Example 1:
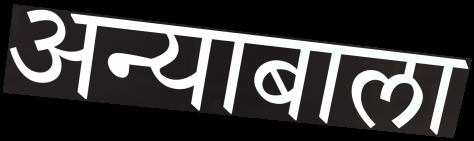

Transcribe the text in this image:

अन्याबाला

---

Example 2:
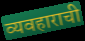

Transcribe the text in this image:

व्यवहाराची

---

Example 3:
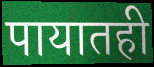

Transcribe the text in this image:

पायातही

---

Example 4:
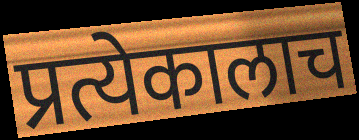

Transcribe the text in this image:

प्रत्येकालाच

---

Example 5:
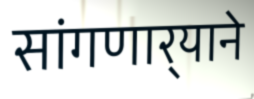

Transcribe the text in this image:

सांगणार्‍याने